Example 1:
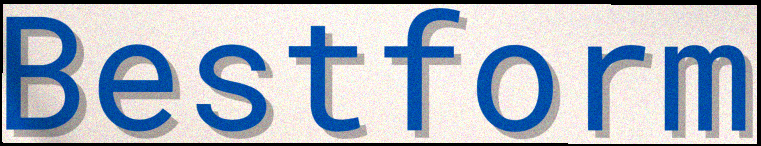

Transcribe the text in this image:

Bestform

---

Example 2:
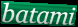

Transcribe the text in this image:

batami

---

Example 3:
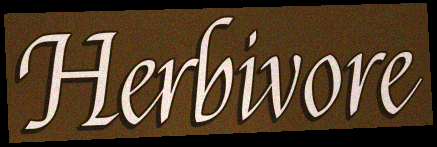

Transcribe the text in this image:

Herbivore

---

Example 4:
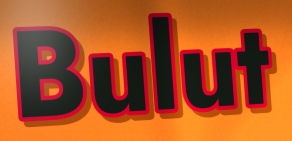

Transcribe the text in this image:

Bulut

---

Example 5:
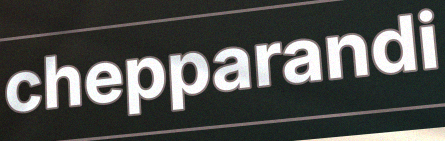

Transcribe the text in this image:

chepparandi